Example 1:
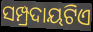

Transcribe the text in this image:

ସମ୍ପ୍ରଦାୟଟିଏ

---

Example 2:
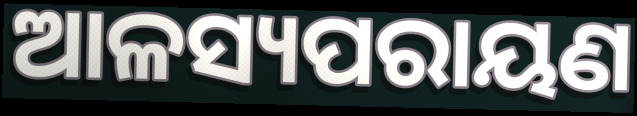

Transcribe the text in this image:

ଆଳସ୍ୟପରାୟଣ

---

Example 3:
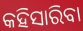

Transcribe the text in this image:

କହିସାରିବା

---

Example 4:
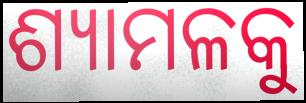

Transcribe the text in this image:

ଶ୍ୟାମଳକୁ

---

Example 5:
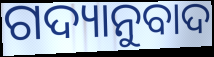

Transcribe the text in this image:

ଗଦ୍ୟାନୁବାଦ